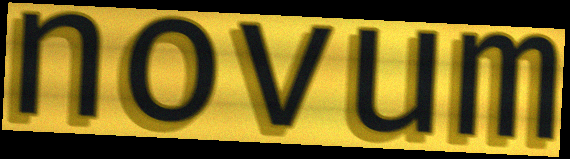
novum